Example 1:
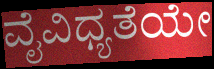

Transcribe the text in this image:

ವೈವಿಧ್ಯತೆಯೇ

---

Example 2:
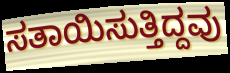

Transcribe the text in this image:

ಸತಾಯಿಸುತ್ತಿದ್ದವು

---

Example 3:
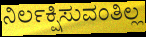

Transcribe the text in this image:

ನಿರ್ಲಕ್ಷಿಸುವಂತಿಲ್ಲ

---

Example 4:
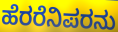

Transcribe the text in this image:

ಹೆರರೆನಿಪರನು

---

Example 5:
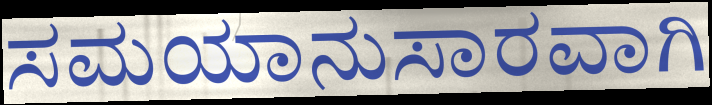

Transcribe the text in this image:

ಸಮಯಾನುಸಾರವಾಗಿ